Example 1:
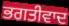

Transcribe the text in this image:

ਭਗਤੀਵਾਦ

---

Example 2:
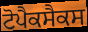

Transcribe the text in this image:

ਟੋਪੈਕਸੈਕਸ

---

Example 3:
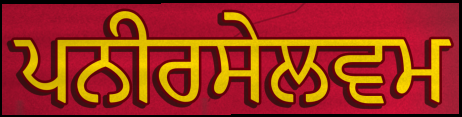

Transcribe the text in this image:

ਪਨੀਰਸੇਲਵਮ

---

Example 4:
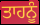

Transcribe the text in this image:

ਤਾਹਨੂੰ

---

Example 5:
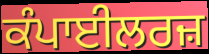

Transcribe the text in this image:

ਕੰਪਾਈਲਰਜ਼